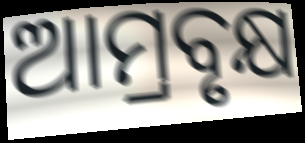
ଆମ୍ରବୃକ୍ଷ